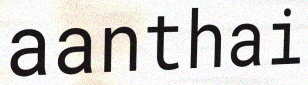
aanthai